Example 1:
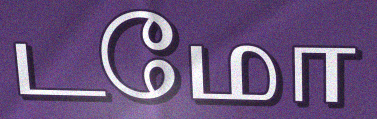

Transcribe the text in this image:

டமோ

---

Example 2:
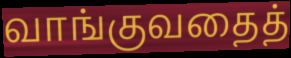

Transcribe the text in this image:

வாங்குவதைத்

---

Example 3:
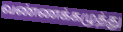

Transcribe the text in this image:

வண்ணக்கழுத்து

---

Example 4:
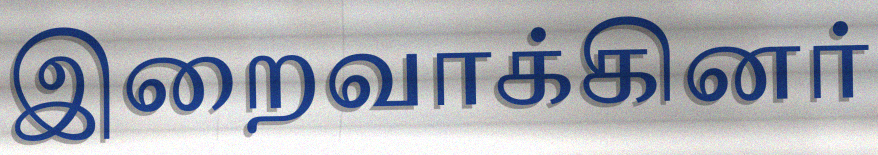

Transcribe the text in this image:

இறைவாக்கினர்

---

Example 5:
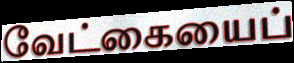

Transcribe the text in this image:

வேட்கையைப்